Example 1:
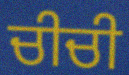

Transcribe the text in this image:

ਚੀਚੀ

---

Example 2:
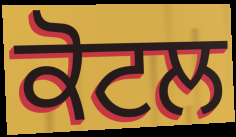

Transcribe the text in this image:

ਕੋਟਲ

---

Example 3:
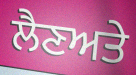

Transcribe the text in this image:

ਲੈਣਅਤੇ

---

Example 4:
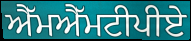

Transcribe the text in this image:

ਐੱਮਐੱਮਟੀਪੀਏ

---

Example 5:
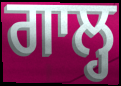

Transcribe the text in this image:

ਗਾਲ੍ਹ